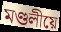
মণ্ডলীয়ে